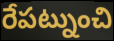
రేపట్నుంచి